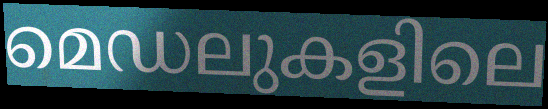
മെഡലുകളിലെ